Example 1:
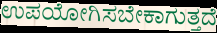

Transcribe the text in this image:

ಉಪಯೋಗಿಸಬೇಕಾಗುತ್ತದೆ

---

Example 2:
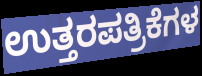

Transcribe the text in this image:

ಉತ್ತರಪತ್ರಿಕೆಗಳ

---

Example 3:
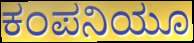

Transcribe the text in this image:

ಕಂಪನಿಯೂ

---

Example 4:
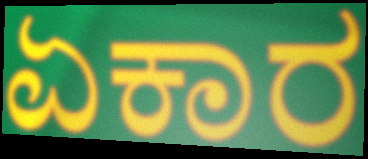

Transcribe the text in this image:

ಏಕಾರ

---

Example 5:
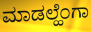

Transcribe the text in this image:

ಮಾಡಲ್ಹೆಂಗಾ